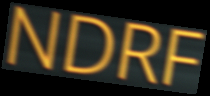
NDRF